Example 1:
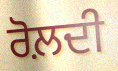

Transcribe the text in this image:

ਰੋਲ਼ਦੀ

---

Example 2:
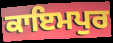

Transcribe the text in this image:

ਕਾਇਮਪੁਰ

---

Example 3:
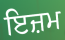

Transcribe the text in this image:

ਇਜ਼ਮ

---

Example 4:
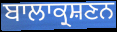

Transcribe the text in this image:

ਬਾਲਾਕ੍ਰਸ਼ਣਨ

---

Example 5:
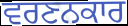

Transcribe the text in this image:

ਵਰਣਨਕਾਰ